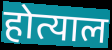
होत्याल